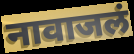
नावाजलं